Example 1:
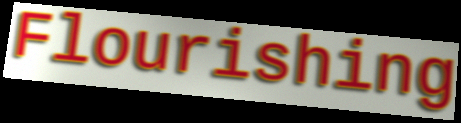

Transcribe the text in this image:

Flourishing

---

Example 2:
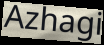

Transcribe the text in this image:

Azhagi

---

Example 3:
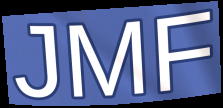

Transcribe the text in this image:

JMF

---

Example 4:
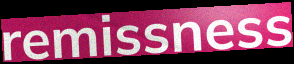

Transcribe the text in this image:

remissness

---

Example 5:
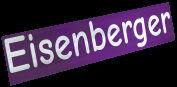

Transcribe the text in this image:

Eisenberger